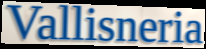
Vallisneria